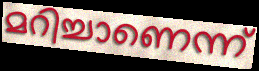
മറിച്ചാണെന്ന്